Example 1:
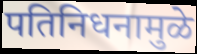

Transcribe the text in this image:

पतिनिधनामुळे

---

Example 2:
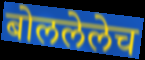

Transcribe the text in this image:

बोललेलेच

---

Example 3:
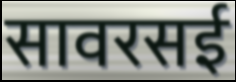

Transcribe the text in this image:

सावरसई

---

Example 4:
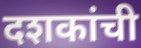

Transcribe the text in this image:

दशकांची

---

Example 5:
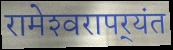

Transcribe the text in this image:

रामेश्वरापर्यंत